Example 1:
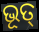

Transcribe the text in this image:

ଭୂତ୍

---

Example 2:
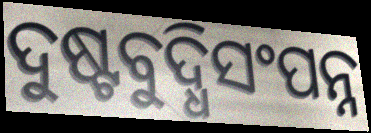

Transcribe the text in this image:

ଦୁଷ୍ଟବୁଦ୍ଧିସଂପନ୍ନ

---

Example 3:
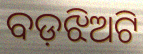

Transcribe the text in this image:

ବଡ଼ଝିଅଟି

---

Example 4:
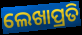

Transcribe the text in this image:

ଲେଖାପ୍ରତି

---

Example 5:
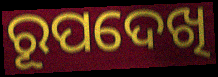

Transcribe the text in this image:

ରୂପଦେଖି